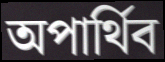
অপার্থিব